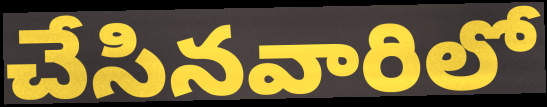
చేసినవారిలో